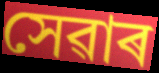
সেৱাৰ